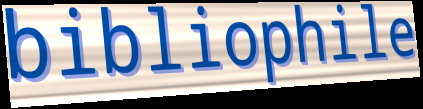
bibliophile